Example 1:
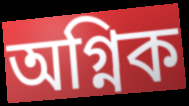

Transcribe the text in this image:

অগ্নিক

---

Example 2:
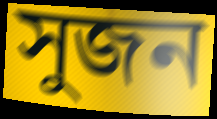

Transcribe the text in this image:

সুজন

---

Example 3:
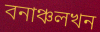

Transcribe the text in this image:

বনাঞ্চলখন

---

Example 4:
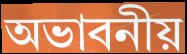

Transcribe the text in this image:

অভাবনীয়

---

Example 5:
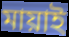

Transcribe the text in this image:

মায়াই